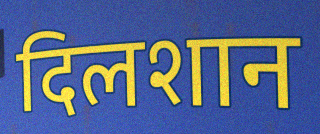
दिलशान